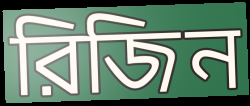
রিজিন